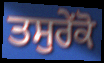
ਤਸੁਰੇਂਕੋ